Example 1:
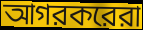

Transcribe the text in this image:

আগরকরেরা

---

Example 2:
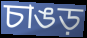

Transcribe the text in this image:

চাঙড়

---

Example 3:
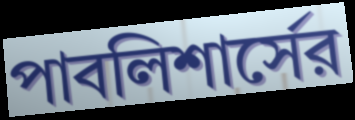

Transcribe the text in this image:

পাবলিশার্সের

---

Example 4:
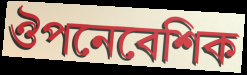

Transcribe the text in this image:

ঔপনেবেশিক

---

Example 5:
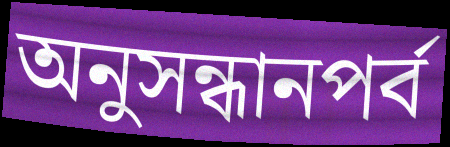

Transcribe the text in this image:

অনুসন্ধানপর্ব